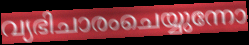
വ്യഭിചാരംചെയ്യുന്നോ